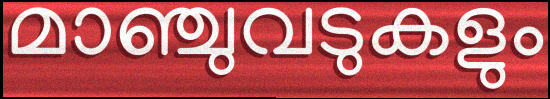
മാഞ്ചുവടുകളും